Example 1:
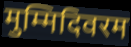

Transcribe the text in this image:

मुम्मिदिवरम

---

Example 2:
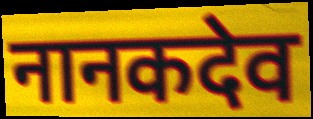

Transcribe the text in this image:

नानकदेव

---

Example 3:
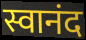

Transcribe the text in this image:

स्वानंद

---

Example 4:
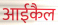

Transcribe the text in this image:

आईकैल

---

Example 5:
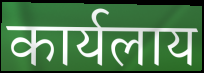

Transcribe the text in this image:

कार्यलाय